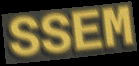
SSEM